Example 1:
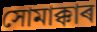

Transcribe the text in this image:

সোমাক্কাৰ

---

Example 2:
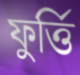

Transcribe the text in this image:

ফুৰ্ত্তি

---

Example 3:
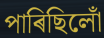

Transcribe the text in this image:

পাৰিছিলোঁ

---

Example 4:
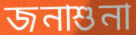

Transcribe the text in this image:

জনাশুনা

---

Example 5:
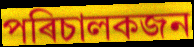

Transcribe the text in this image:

পৰিচালকজন